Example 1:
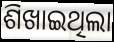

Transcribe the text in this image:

ଶିଖାଇଥିଲା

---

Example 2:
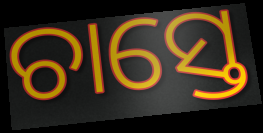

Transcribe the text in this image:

ଚାସ୍ତେ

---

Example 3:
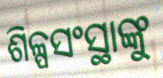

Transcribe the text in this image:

ଶିଳ୍ପସଂସ୍ଥାଙ୍କୁ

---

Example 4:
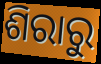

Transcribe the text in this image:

ଶିରାରୁ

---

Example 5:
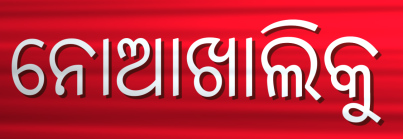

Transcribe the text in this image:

ନୋଆଖାଲିକୁ